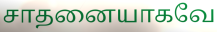
சாதனையாகவே